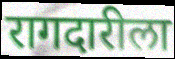
रागदारीला